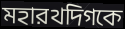
মহারথদিগকে